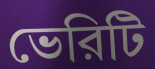
ভেরিটি